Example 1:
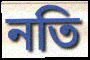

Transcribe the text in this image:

নতি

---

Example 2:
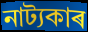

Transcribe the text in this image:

নাট্যকাৰ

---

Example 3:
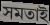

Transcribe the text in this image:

সমতাই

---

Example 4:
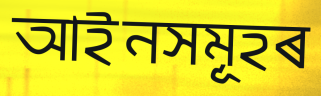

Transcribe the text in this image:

আইনসমূহৰ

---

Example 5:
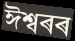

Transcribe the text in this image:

ঈশ্বৰৰ